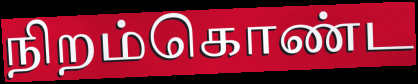
நிறம்கொண்ட